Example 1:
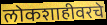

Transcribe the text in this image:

लोकशाहीवरचे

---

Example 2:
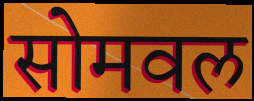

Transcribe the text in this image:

सोमवल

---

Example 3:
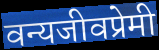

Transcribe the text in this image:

वन्यजीवप्रेमी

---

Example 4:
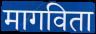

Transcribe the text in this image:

मागविता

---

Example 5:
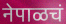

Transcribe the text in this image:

नेपाळचं